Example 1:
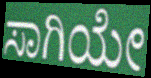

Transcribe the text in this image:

ಸಾಗಿಯೇ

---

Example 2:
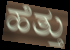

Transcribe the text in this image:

ಹೆತ್ತು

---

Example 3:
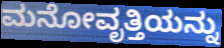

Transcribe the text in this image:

ಮನೋವೃತ್ತಿಯನ್ನು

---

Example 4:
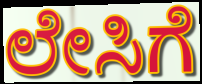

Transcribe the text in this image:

ಲೇಸಿಗೆ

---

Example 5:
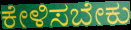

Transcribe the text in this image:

ಕೇಳಿಸಬೇಕು